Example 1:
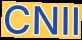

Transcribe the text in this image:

CNII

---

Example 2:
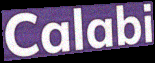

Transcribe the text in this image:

Calabi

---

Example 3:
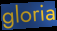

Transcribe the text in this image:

gloria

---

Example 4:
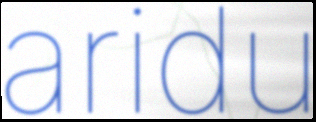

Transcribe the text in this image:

aridu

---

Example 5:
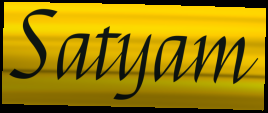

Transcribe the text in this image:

Satyam